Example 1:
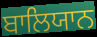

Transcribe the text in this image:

ਬਾਲਿਯਾਨ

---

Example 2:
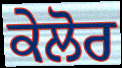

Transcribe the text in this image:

ਕੇਲੋਰ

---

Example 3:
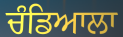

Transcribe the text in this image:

ਚੰਡਿਆਲਾ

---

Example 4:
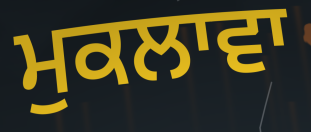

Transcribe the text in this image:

ਮੁਕਲਾਵਾ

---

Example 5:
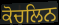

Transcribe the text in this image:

ਕੋਚਲਿਨ